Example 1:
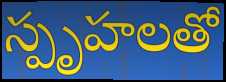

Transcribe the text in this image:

స్పృహలతో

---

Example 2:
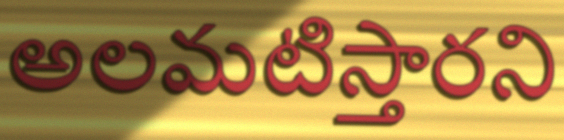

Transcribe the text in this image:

అలమటిస్తారని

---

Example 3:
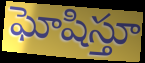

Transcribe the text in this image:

ఘోషిస్తూ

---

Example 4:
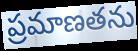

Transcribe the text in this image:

ప్రమాణతను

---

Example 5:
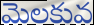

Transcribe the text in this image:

మెలకువ